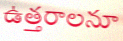
ఉత్తరాలనూ